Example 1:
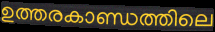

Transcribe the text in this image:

ഉത്തരകാണ്ഡത്തിലെ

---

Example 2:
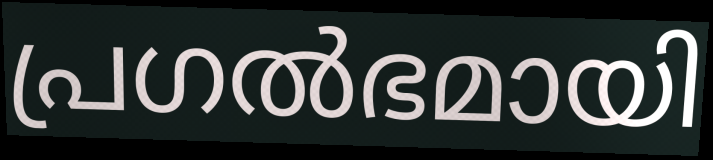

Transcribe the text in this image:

പ്രഗൽഭമായി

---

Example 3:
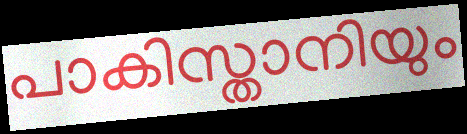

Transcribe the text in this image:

പാകിസ്താനിയും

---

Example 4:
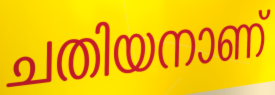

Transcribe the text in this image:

ചതിയനാണ്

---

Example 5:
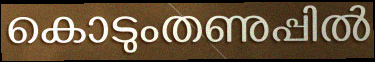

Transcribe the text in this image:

കൊടുംതണുപ്പിൽ